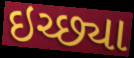
ઇચ્છ્યા